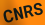
CNRS